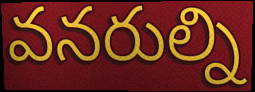
వనరుల్ని